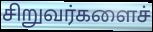
சிறுவர்களைச்